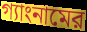
গ্যাংনামের